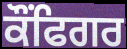
ਕੌਂਫਿਗਰ